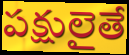
పక్షులైతే